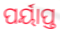
ପର୍ୟାପ୍ତ